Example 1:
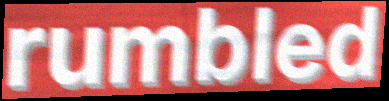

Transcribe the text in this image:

rumbled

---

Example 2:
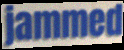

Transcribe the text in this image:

jammed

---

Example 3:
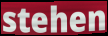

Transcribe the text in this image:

stehen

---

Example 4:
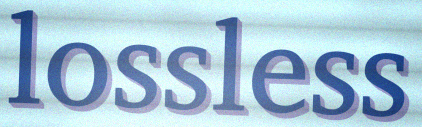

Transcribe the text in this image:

lossless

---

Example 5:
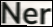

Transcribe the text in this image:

Ner